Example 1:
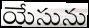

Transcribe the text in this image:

యేసును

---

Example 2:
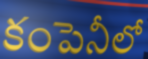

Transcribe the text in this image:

కంపెనీలో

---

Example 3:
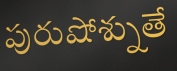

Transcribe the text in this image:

పురుషోశ్నుతే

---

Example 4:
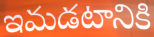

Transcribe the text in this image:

ఇమడటానికి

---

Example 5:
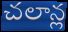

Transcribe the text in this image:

చలాన్ల